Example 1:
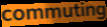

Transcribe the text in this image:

commuting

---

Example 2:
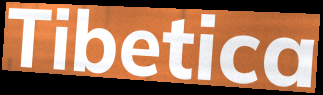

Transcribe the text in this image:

Tibetica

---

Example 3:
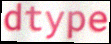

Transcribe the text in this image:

dtype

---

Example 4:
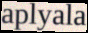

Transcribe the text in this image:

aplyala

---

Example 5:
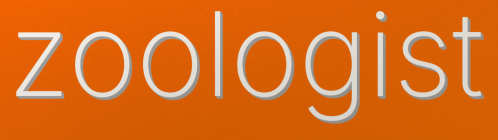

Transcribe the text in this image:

zoologist